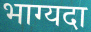
भाग्यदा